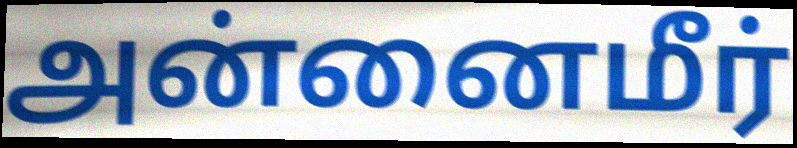
அன்னைமீர்